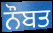
ਨੌਬਤ